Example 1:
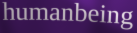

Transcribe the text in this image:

humanbeing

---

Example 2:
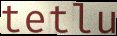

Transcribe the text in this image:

tetlu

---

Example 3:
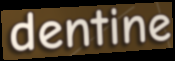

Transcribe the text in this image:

dentine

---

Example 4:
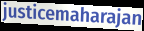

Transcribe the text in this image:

justicemaharajan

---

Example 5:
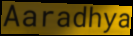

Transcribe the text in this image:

Aaradhya